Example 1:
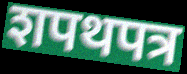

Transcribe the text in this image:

शपथपत्र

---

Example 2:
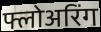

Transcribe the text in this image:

फ्लोअरिंग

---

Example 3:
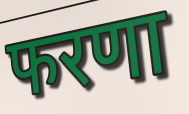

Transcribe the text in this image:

फरणा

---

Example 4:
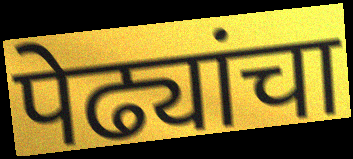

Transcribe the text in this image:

पेढ्यांचा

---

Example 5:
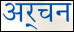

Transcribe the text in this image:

अर्चन